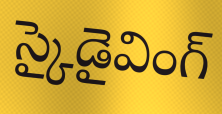
స్కైడైవింగ్